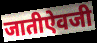
जातीऐवजी